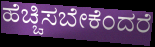
ಹೆಚ್ಚಿಸಬೇಕೆಂದರೆ